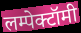
लम्पेक्टॉमी